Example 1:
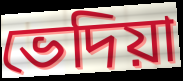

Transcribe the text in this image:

ভেদিয়া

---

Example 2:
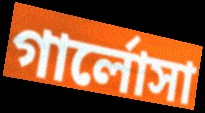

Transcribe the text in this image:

গার্লোসা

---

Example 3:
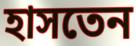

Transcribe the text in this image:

হাসতেন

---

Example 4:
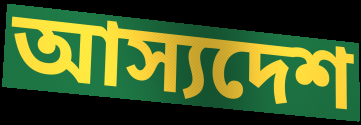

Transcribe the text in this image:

আস্যদেশ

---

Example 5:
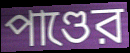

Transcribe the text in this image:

পাণ্ডের